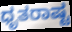
ಧೃತರಾಷ್ಟ